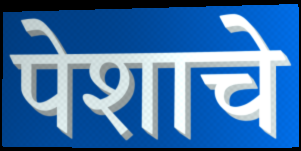
पेशाचे